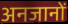
अनजानों